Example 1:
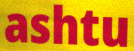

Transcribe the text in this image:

ashtu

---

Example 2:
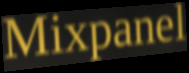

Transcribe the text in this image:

Mixpanel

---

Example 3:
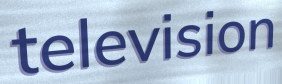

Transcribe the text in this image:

television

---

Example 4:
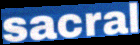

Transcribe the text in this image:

sacral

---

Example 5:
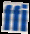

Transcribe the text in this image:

ffi